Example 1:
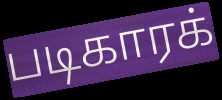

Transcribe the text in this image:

படிகாரக்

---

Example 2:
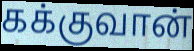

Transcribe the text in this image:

கக்குவான்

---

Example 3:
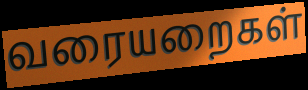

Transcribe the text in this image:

வரையறைகள்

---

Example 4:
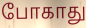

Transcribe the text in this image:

போகாது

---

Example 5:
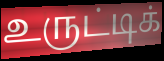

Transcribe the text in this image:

உருட்டிக்